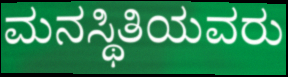
ಮನಸ್ಥಿತಿಯವರು